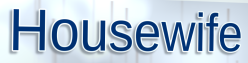
Housewife